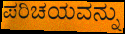
ಪರಿಚಯವನ್ನು